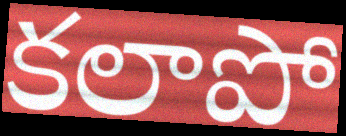
కలాపో